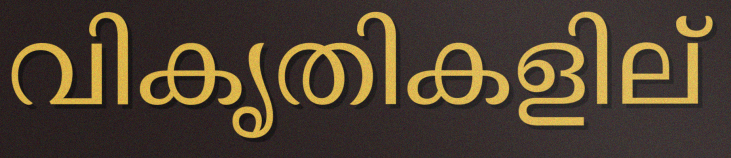
വികൃതികളില്